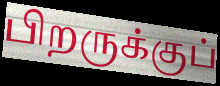
பிறருக்குப்